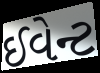
ઈવેન્ટ